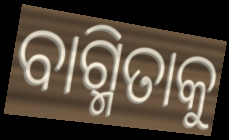
ବାଗ୍ମିତାକୁ